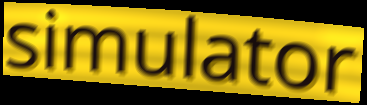
simulator